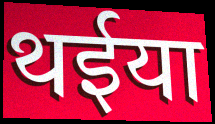
थईया